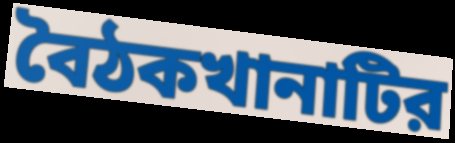
বৈঠকখানাটির